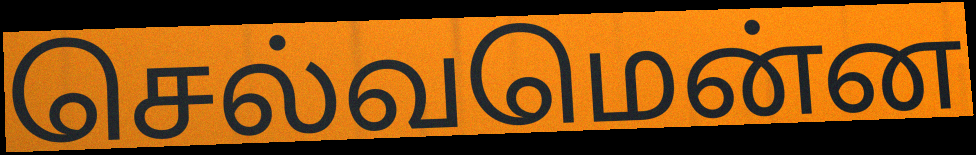
செல்வமென்ன